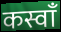
कस्वाँ